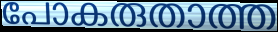
പോകരുതാത്ത